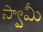
స్వామీ